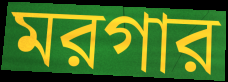
মরগার